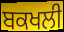
ਬਕਖਲੀ